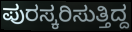
ಪುರಸ್ಕರಿಸುತ್ತಿದ್ದ